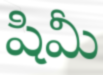
షిమీ